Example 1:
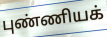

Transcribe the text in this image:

புண்ணியக்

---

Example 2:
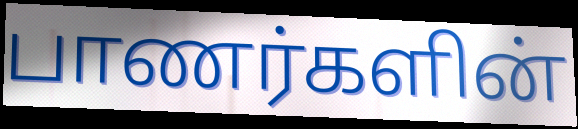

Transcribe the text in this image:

பாணர்களின்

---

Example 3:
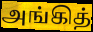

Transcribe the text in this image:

அங்கித்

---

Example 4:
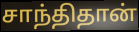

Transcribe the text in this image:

சாந்திதான்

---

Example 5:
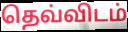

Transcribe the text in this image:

தெவ்விடம்